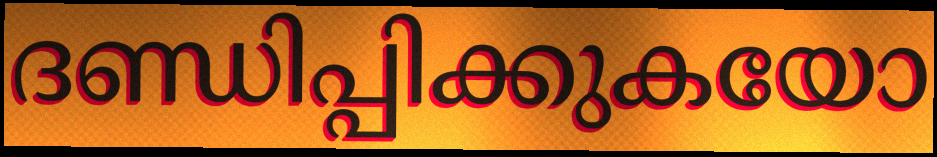
ദണ്ഡിപ്പിക്കുകയോ